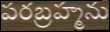
పరబ్రహ్మను